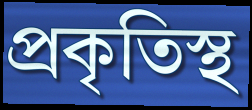
প্রকৃতিস্থ